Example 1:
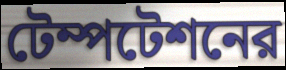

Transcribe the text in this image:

টেম্পটেশনের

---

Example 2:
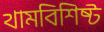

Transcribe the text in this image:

থামবিশিষ্ট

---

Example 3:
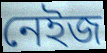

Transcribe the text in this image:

নেইজ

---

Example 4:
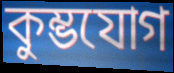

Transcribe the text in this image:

কুম্ভযোগ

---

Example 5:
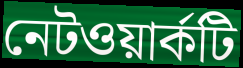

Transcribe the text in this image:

নেটওয়ার্কটি